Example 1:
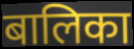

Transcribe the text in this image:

बालिका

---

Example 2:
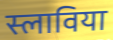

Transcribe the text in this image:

स्लाविया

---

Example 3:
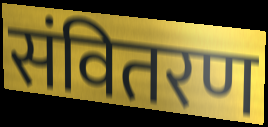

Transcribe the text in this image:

संवितरण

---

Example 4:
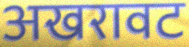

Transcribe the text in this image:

अखरावट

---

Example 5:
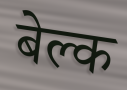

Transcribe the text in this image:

बेल्क